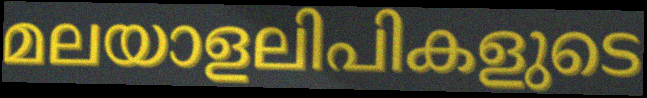
മലയാളലിപികളുടെ